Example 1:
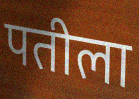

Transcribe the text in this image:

पतीला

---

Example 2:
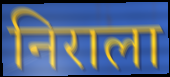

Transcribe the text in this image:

निराला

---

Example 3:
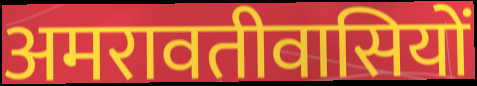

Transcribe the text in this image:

अमरावतीवासियों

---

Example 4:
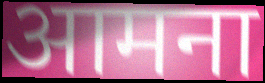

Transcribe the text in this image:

आमना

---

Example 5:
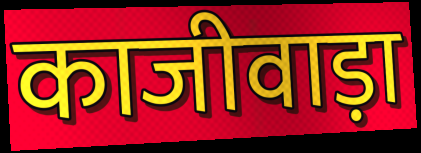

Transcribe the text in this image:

काजीवाड़ा